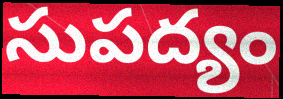
సుపద్యం